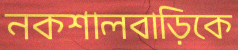
নকশালবাড়িকে